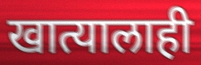
खात्यालाही